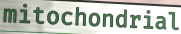
mitochondrial